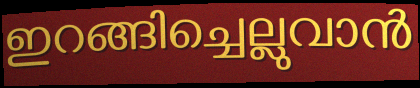
ഇറങ്ങിച്ചെല്ലുവാൻ